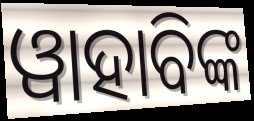
ୱାହାବିଙ୍କ